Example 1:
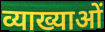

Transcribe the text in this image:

व्याख्याओं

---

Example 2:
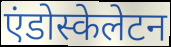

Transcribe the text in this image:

एंडोस्केलेटन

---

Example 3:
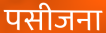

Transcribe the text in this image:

पसीजना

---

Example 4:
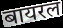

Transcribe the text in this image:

बायरल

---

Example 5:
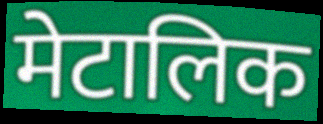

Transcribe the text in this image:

मेटालिक